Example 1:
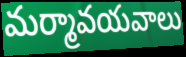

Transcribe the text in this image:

మర్మావయవాలు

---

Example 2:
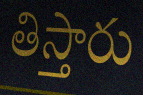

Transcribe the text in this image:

తిస్తారు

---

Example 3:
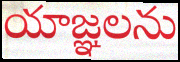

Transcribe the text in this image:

యాజ్ఞలను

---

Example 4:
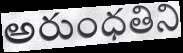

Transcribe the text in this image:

అరుంధతిని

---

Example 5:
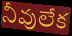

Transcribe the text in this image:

నీవులేక